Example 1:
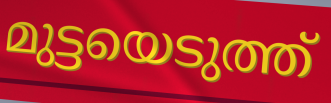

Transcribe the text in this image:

മുട്ടയെടുത്ത്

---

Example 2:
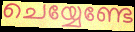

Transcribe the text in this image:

ചെയ്യേണ്ടേ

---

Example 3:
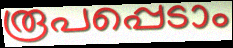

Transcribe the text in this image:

രൂപപ്പെടാം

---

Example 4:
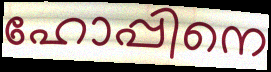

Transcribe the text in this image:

ഹോപ്പിനെ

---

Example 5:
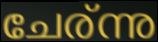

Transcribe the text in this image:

ചേര്ന്നു